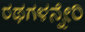
ರಥಗಳನ್ನೇರಿ